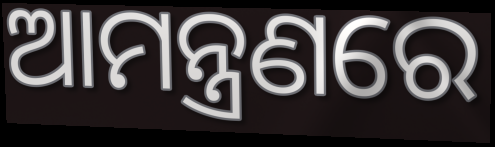
ଆମନ୍ତ୍ରଣରେ